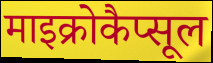
माइक्रोकैप्सूल